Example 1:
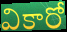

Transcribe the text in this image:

వికారో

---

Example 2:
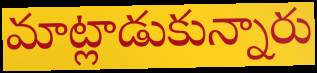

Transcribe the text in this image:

మాట్లాడుకున్నారు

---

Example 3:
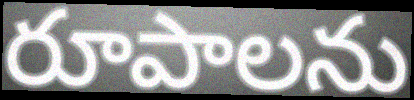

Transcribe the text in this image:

రూపాలను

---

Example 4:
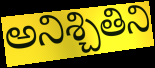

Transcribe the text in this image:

అనిశ్చితిని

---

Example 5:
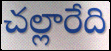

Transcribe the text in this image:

చల్లారేది